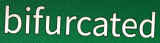
bifurcated